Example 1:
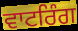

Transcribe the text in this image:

ਵਾਟਰਿੰਗ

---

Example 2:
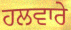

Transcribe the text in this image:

ਹਲਵਾਰੇ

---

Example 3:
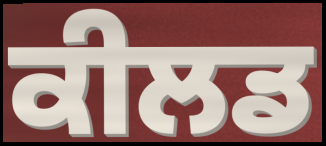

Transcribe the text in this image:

ਕੀਲਡ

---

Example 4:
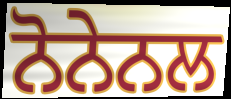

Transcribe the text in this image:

ਨੋਨੇਨਲ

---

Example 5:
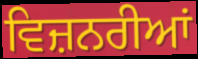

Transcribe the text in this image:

ਵਿਜ਼ਨਰੀਆਂ